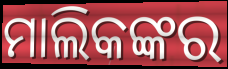
ମାଲିକଙ୍କର